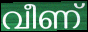
വീണ്